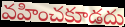
వహించకూడదు